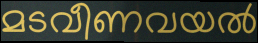
മടവീണവയൽ